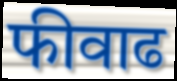
फीवाढ